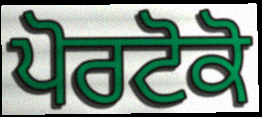
ਪੋਰਟੋਕੋ